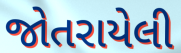
જોતરાયેલી